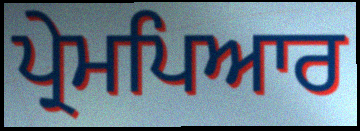
ਪ੍ਰੇਮਪਿਆਰ